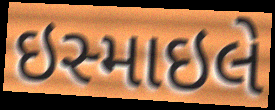
ઇસ્માઇલે